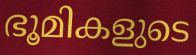
ഭൂമികളുടെ